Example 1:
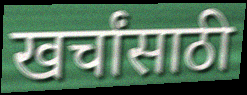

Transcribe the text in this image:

खर्चांसाठी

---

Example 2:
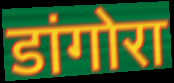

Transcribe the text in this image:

डांगोरा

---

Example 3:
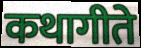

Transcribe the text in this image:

कथागीते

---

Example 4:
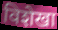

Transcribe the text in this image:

विशेखा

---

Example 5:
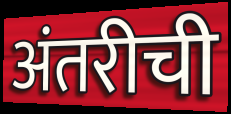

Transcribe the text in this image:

अंतरीची